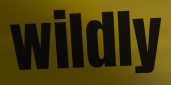
wildly